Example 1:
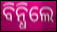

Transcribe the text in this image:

ବିନ୍ଧିଲେ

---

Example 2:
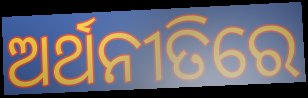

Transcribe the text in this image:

ଅର୍ଥନୀତିରେ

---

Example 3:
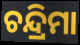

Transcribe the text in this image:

ଚନ୍ଦ୍ରିମା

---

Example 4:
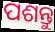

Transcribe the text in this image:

ପଶନ୍ତୁ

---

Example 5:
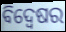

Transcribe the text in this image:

ବିଦ୍ୱେଷର